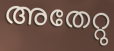
അതേറ്റു